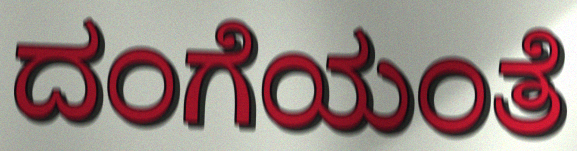
ದಂಗೆಯಂತೆ